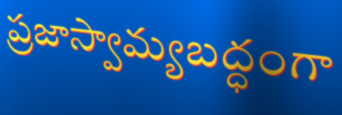
ప్రజాస్వామ్యబద్ధంగా